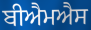
ਬੀਐਮਐਸ